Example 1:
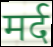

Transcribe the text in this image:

मर्द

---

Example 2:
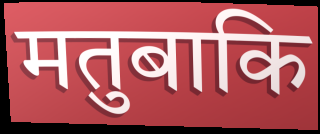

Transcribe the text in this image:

मतुबाकि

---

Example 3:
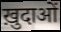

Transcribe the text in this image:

ख़ुदाओं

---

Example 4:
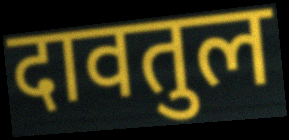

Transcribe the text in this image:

दावतुल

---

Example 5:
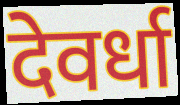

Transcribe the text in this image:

देवर्धा